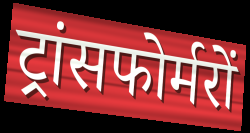
ट्रांसफोर्मरों